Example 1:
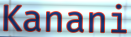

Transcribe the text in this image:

Kanani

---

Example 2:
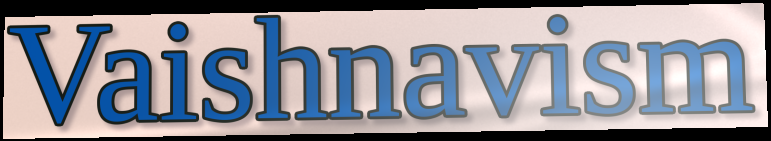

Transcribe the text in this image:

Vaishnavism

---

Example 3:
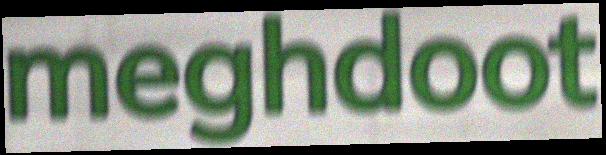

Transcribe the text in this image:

meghdoot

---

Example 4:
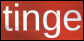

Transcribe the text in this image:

tinge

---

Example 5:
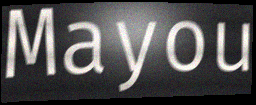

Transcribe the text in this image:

Mayou